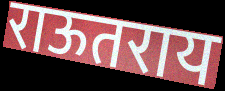
राऊतराय